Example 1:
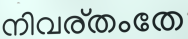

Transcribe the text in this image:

നിവര്തംതേ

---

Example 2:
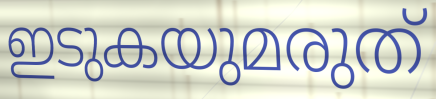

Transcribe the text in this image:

ഇടുകയുമരുത്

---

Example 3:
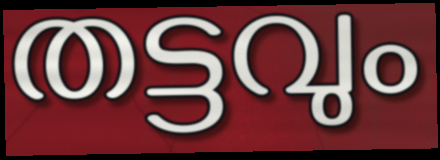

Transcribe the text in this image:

തട്ടവും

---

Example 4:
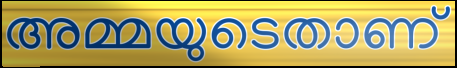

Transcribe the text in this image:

അമ്മയുടെതാണ്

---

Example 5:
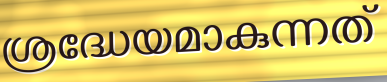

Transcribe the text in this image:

ശ്രദ്ധേയമാകുന്നത്